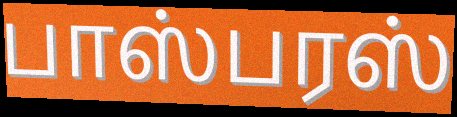
பாஸ்பரஸ்